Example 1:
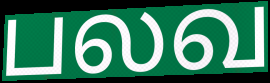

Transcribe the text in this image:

பலவ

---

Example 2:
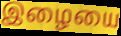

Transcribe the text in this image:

இழையை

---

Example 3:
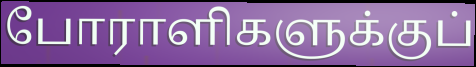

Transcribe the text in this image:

போராளிகளுக்குப்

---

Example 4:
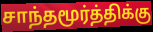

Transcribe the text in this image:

சாந்தமூர்த்திக்கு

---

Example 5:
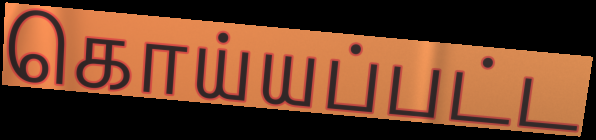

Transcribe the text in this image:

கொய்யப்பட்ட